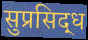
सुप्रसिद्ध